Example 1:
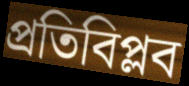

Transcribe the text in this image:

প্রতিবিপ্লব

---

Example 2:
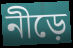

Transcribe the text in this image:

নীড়ে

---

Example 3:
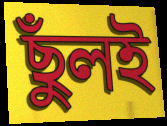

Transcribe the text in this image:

ছুঁলই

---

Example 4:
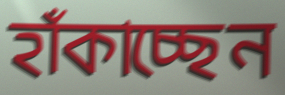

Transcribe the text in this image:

হাঁকাচ্ছেন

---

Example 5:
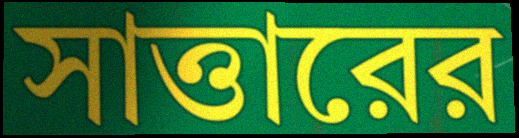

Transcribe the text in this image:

সাত্তারের